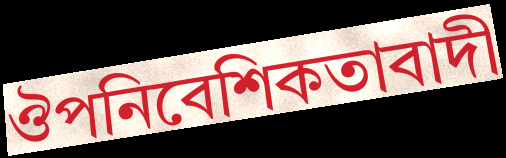
ঔপনিবেশিকতাবাদী